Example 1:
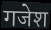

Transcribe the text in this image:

गजेश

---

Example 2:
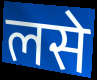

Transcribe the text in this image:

लसे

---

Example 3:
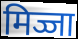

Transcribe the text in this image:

मिज्जा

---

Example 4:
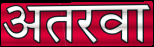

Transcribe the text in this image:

अतरवा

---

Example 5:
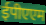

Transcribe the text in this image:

ईपीएएम